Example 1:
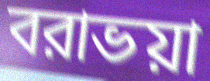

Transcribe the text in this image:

বরাভয়া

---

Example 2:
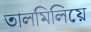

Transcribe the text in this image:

তালমিলিয়ে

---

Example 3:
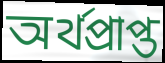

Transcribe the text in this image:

অর্থপ্রাপ্ত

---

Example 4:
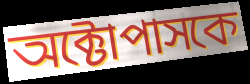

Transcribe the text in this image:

অক্টোপাসকে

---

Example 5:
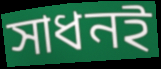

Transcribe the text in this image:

সাধনই